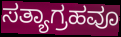
ಸತ್ಯಾಗ್ರಹವೂ